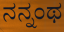
ನನ್ನಂಥ